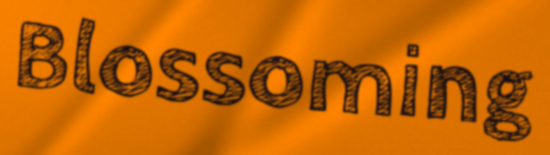
Blossoming